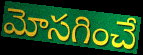
మోసగించే